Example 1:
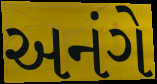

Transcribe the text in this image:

અનંગે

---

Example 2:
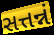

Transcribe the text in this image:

સત્તન્નં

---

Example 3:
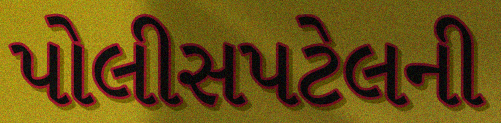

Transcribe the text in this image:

પોલીસપટેલની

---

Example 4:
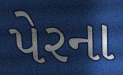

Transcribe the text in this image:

પેરના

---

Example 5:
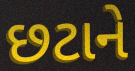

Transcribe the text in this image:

છટાને